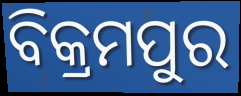
ବିକ୍ରମପୁର